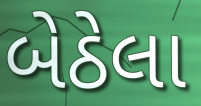
બેઠેલા